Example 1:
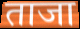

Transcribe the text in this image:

ताजा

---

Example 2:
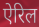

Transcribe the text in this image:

ऐरिल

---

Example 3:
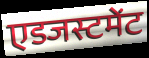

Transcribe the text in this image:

एडजस्‍टमेंट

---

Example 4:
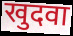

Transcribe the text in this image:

खुदवा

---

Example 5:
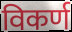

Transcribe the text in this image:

विकर्ण